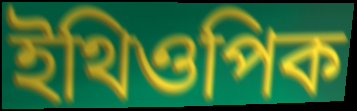
ইথিওপিক